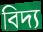
বিদ্য